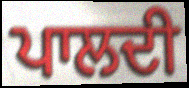
ਪਾਲਦੀ